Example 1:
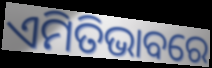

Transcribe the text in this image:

ଏମିତିଭାବରେ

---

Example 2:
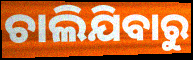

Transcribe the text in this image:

ଚାଲିଯିବାରୁ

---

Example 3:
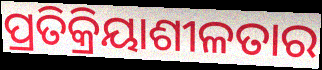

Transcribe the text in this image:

ପ୍ରତିକ୍ରିୟାଶୀଳତାର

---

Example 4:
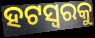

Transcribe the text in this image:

ହଟସ୍ଵରକୁ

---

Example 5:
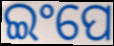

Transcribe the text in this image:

ଇଂପେ